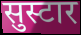
सुस्टार